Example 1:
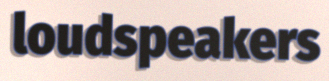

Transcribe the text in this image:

loudspeakers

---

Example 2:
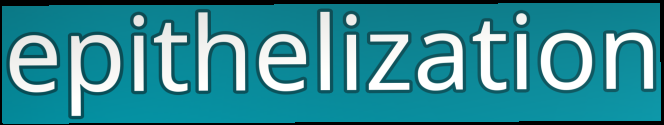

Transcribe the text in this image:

epithelization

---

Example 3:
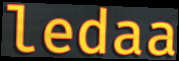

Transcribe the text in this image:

ledaa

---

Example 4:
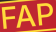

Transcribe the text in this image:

FAP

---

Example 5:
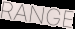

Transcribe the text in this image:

RANGE